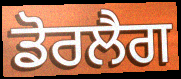
ਡੋਰਲੈਗ